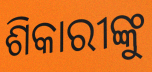
ଶିକାରୀଙ୍କୁ